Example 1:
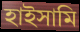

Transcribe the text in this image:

হাইসামি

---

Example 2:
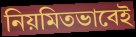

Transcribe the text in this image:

নিয়মিতভাবেই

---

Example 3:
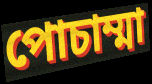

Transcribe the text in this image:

পোচাম্মা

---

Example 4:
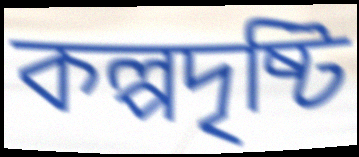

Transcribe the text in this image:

কল্পদৃষ্টি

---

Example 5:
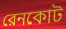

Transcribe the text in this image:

রেনকোট